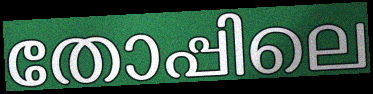
തോപ്പിലെ